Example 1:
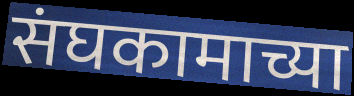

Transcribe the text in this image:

संघकामाच्या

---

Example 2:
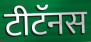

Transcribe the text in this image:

टीटॅनस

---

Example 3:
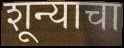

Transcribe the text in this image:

शून्याचा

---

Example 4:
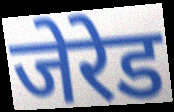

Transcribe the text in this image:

जेरेड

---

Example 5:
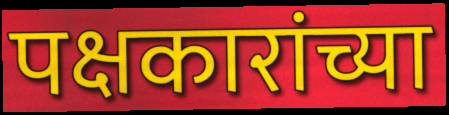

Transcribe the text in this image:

पक्षकारांच्या